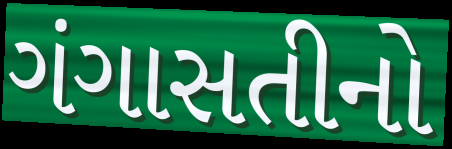
ગંગાસતીનો